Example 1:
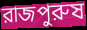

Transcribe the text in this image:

রাজপুরুষ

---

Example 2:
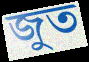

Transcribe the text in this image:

জুত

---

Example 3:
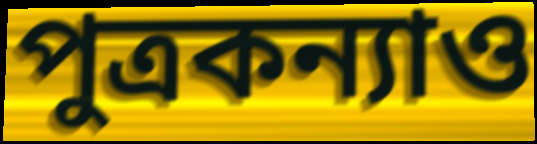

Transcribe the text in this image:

পুত্রকন্যাও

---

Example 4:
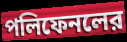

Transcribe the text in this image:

পলিফেনলের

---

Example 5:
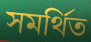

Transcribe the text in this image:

সমর্থিত